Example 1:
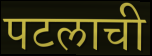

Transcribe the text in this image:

पटलाची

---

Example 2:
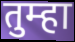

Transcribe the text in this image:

तुम्हा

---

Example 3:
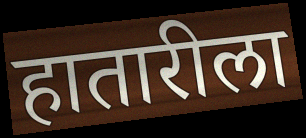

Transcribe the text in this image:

हातारीला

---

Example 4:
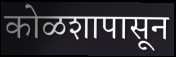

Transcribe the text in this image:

कोळशापासून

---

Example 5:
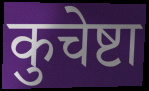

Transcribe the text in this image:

कुचेष्टा